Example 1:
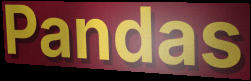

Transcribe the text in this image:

Pandas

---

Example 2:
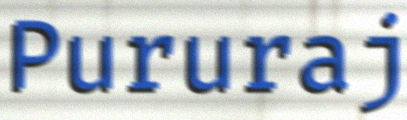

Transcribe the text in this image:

Pururaj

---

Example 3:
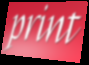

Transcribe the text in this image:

print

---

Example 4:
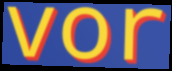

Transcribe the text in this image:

vor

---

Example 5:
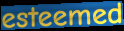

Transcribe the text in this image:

esteemed